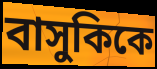
বাসুকিকে